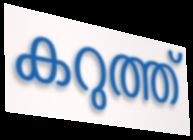
കറുത്ത്